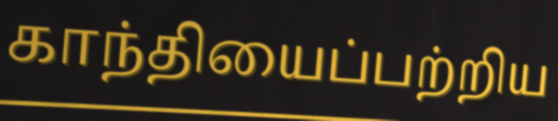
காந்தியைப்பற்றிய